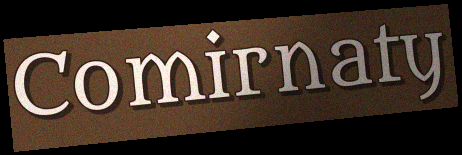
Comirnaty